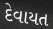
દેવાયત